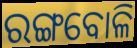
ରଙ୍ଗବୋଳି